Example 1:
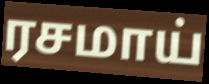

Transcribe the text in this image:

ரசமாய்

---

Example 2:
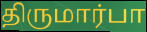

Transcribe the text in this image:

திருமார்பா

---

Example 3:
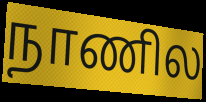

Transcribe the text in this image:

நாணில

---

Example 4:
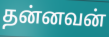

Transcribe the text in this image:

தன்னவன்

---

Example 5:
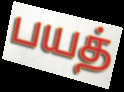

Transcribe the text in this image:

பயத்